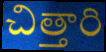
చిత్తారి